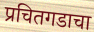
प्रचितगडाचा